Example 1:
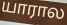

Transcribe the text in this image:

யாரால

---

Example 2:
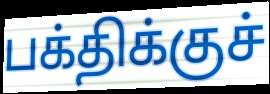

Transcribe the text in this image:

பக்திக்குச்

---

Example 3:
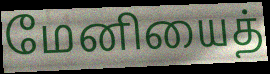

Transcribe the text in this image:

மேனியைத்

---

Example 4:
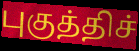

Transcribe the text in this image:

புகுத்திச்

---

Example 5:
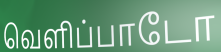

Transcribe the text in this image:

வெளிப்பாடோ